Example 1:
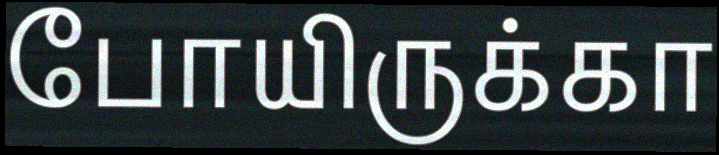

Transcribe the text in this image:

போயிருக்கா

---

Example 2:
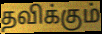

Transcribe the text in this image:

தவிக்கும்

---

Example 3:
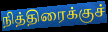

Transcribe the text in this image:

நித்திரைக்குச்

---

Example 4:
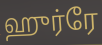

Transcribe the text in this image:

ஹுர்ரே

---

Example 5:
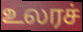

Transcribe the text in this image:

உலரச்